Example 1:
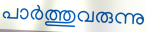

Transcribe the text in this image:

പാർത്തുവരുന്നു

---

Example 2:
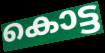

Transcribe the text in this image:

കൊട്ട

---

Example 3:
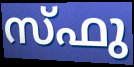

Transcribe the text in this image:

സ്ഫു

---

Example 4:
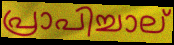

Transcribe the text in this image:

പ്രാപിച്ചാല്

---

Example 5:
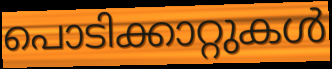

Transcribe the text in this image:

പൊടിക്കാറ്റുകൾ